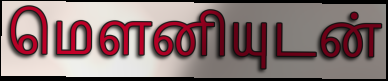
மௌனியுடன்